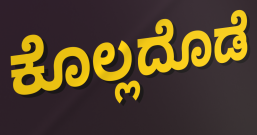
ಕೊಲ್ಲದೊಡೆ